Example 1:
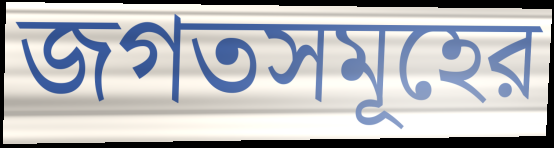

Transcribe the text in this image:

জগতসমূহের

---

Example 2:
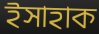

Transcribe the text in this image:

ইসাহাক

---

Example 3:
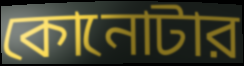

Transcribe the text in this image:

কোনোটার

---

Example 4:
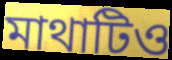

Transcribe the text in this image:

মাথাটিও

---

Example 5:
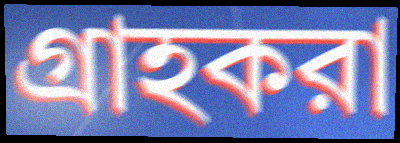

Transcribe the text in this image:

গ্রাহকরা